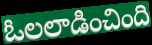
ఓలలాడించింది